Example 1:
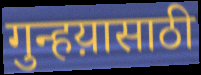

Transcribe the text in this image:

गुन्हय़ासाठी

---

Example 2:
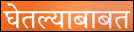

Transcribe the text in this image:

घेतल्याबाबत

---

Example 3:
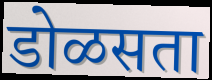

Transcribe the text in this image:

डोळसता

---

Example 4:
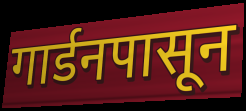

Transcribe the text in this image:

गार्डनपासून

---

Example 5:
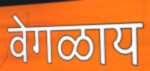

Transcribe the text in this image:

वेगळाय